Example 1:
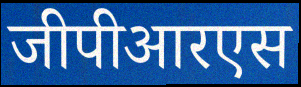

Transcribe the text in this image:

जीपीआरएस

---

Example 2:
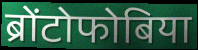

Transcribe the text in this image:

ब्रोंटोफोबिया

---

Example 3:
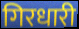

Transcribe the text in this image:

गिरधारी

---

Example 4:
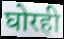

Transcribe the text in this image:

घोरही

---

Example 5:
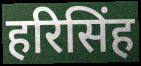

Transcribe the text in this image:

हरिसिंह